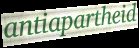
antiapartheid